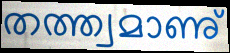
തത്ത്വമാണു്